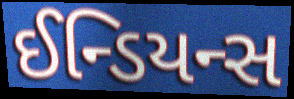
ઈન્ડિયન્સ